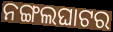
ନଙ୍ଗଲଘାଟର